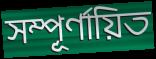
সম্পূর্ণায়িত